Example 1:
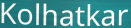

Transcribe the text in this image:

Kolhatkar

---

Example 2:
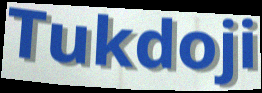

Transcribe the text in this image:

Tukdoji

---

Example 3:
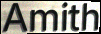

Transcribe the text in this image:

Amith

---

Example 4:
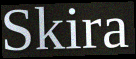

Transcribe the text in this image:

Skira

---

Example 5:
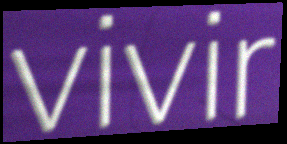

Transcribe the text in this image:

vivir